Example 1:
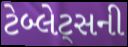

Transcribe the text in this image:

ટેબ્લેટ્સની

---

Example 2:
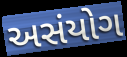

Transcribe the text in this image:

અસંયોગ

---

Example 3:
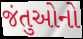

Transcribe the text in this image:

જંતુઓનો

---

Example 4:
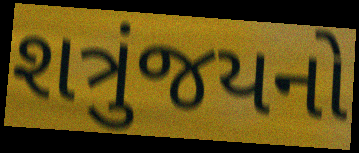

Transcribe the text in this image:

શત્રુંજયનો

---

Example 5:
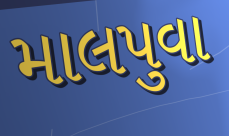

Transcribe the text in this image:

માલપુવા